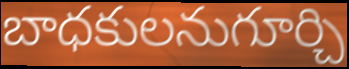
బాధకులనుగూర్చి